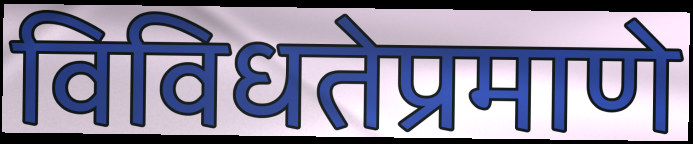
विविधतेप्रमाणे